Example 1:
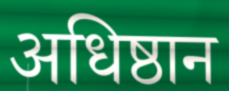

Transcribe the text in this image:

अधिष्ठान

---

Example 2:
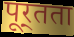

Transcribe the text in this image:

पूर्तता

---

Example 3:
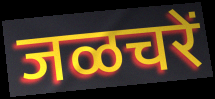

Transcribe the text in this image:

जळचरें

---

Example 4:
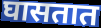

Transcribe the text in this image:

घासतात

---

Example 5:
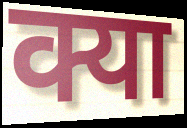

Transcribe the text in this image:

क्या